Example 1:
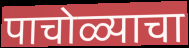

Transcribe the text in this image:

पाचोळ्याचा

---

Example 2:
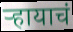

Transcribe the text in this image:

ऱ्हायाचं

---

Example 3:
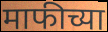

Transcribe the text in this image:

माफीच्या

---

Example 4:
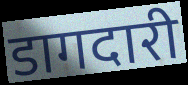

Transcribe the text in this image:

डागदारी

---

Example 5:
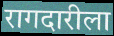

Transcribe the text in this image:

रागदारीला